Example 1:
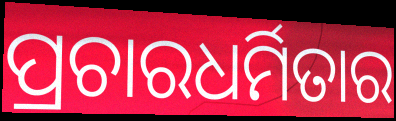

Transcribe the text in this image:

ପ୍ରଚାରଧର୍ମିତାର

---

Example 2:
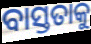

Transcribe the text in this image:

ବାସ୍ତତାକୁ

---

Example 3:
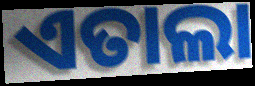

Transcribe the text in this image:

ଏତାଲା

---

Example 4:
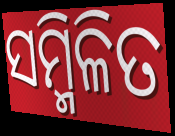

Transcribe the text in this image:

ସମ୍ମିଳିତ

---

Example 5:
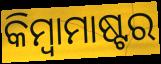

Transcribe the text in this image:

କିମ୍ୱାମାଷ୍ଟର